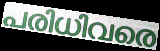
പരിധിവരെ